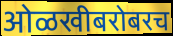
ओळखीबरोबरच